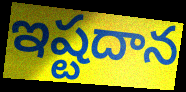
ఇష్టదాన